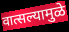
वात्सल्यामुळे